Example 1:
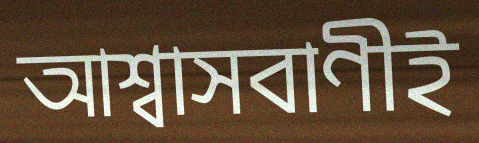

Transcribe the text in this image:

আশ্বাসবাণীই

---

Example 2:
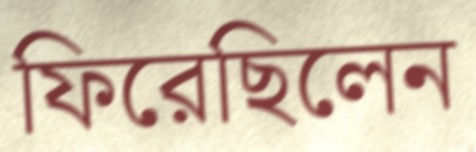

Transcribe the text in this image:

ফিরেছিলেন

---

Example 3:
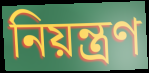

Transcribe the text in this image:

নিয়ন্ত্রণ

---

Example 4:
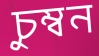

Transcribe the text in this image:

চুম্বন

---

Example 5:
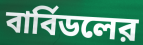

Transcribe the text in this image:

বার্বিডলের